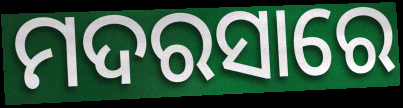
ମଦରସାରେ